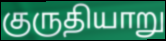
குருதியாறு